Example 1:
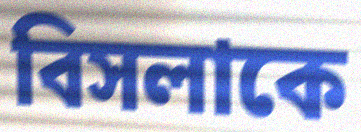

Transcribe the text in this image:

বিসলাকে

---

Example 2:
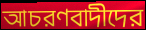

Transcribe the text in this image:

আচরণবাদীদের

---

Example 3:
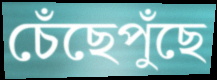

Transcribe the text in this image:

চেঁছেপুঁছে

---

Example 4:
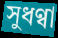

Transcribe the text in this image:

সুধণ্বা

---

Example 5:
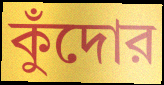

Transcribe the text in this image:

কুঁদোর